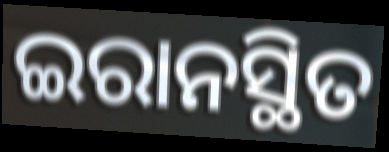
ଇରାନସ୍ଥିତ